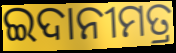
ଇଦାନୀମତ୍ର